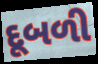
દૂબળી